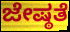
ಜೇಷ್ಠತೆ